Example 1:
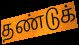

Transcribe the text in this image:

தண்டுக்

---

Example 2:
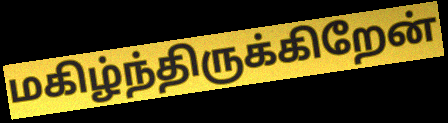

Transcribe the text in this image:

மகிழ்ந்திருக்கிறேன்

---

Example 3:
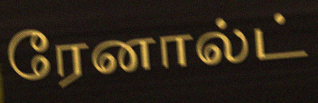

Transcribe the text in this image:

ரேனால்ட்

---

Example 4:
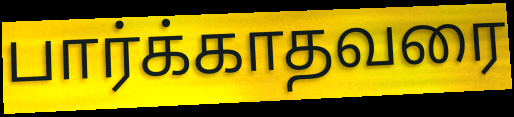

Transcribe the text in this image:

பார்க்காதவரை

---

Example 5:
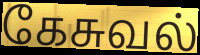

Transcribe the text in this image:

கேசுவல்